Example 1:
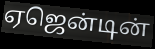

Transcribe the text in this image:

ஏஜென்டின்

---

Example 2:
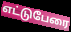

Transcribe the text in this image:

எட்டுபேரை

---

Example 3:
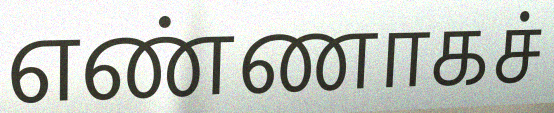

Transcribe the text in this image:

எண்ணாகச்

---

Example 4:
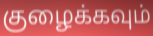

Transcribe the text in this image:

குழைக்கவும்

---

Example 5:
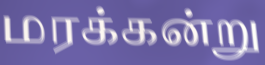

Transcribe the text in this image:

மரக்கன்று